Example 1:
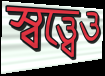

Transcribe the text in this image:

স্বত্ত্বেও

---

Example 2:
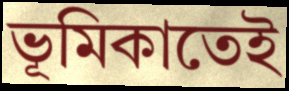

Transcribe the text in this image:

ভূমিকাতেই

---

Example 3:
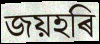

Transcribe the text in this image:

জয়হৰি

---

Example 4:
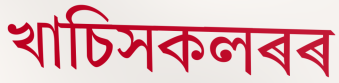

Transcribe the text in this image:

খাচিসকলৰৰ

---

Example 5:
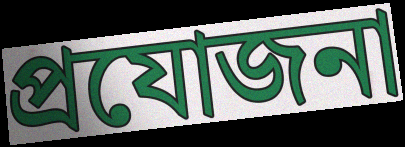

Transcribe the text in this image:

প্ৰযোজনা